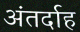
अंतर्दाह